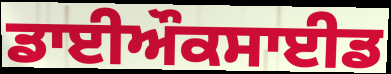
ਡਾਈਔਕਸਾਈਡ